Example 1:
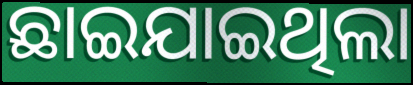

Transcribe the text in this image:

ଛାଇଯାଇଥିଲା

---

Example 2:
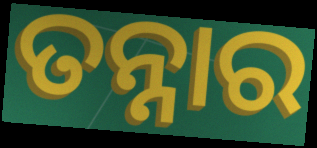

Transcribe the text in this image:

ତନ୍ନାର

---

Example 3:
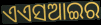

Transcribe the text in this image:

ଏଏସଆଇର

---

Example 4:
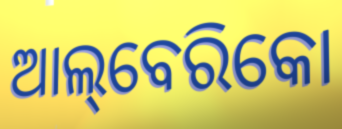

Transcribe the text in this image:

ଆଲ୍‌ବେରିକୋ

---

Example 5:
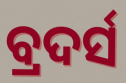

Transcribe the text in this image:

ବ୍ରଦର୍ସ